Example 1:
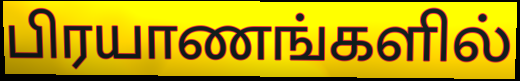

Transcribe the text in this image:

பிரயாணங்களில்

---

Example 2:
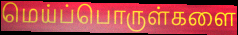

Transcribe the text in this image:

மெய்ப்பொருள்களை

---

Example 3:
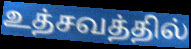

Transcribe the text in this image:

உத்சவத்தில்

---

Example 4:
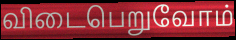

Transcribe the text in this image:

விடைபெறுவோம்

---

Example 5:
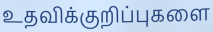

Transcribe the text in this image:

உதவிக்குறிப்புகளை